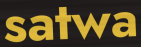
satwa